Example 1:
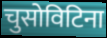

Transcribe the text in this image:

चुसोविटिना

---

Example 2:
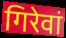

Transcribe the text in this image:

गिरेवां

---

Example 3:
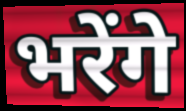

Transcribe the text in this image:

भरेंगे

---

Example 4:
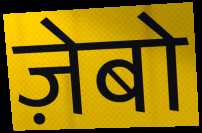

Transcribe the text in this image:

ज़ेबो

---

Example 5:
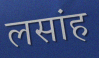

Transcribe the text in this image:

लसांह